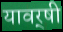
यावर्षी